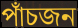
পাঁচজন